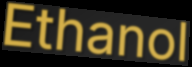
Ethanol